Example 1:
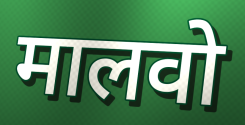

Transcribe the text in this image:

मालवो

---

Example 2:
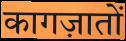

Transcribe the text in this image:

कागज़ातों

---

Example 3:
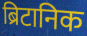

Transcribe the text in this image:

ब्रिटानिक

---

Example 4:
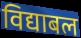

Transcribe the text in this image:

विद्याबल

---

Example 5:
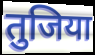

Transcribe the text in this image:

तुजिया